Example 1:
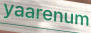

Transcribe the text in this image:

yaarenum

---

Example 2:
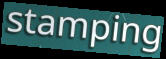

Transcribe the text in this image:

stamping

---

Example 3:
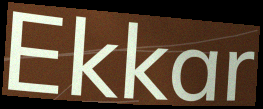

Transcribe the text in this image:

Ekkar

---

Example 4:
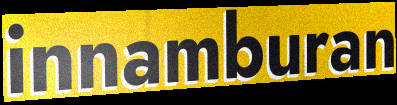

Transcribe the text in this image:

innamburan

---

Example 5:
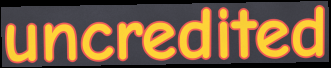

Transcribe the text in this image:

uncredited